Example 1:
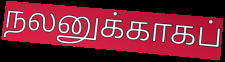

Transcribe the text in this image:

நலனுக்காகப்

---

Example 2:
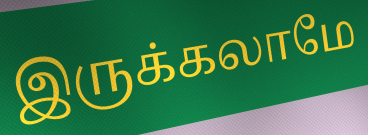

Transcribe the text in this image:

இருக்கலாமே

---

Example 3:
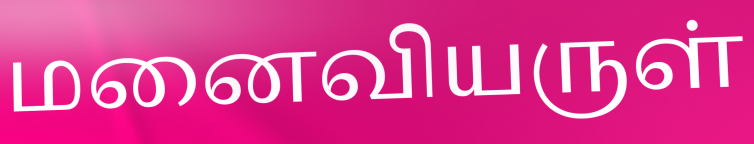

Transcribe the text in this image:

மனைவியருள்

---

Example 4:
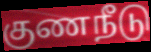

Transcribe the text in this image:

குணநீடு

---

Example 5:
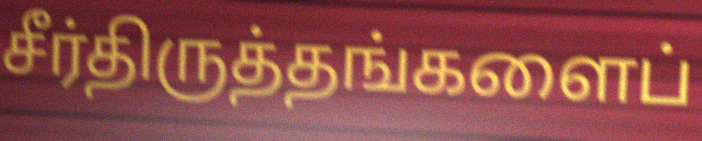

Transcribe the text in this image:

சீர்திருத்தங்களைப்